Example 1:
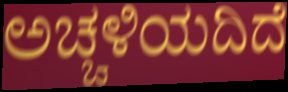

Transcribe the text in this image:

ಅಚ್ಚಳಿಯದಿದೆ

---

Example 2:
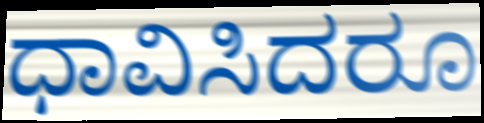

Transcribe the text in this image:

ಧಾವಿಸಿದರೂ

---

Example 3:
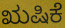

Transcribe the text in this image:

ಋಷಿಕೆ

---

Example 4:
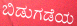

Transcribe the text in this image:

ಬಿಡುಗಡೆಯ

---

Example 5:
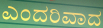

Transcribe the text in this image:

ಎಂದರಿವಾದ